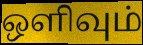
ஒளிவும்